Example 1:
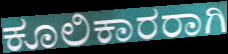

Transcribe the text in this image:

ಕೂಲಿಕಾರರಾಗಿ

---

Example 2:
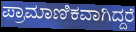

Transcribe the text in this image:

ಪ್ರಾಮಾಣಿಕವಾಗಿದ್ದರೆ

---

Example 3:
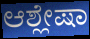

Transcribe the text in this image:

ಆಶ್ಲೇಷಾ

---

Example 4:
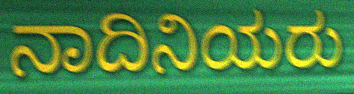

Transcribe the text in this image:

ನಾದಿನಿಯರು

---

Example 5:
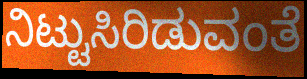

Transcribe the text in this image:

ನಿಟ್ಟುಸಿರಿಡುವಂತೆ